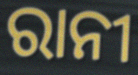
ରାନୀ